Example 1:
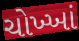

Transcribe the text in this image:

ચોખ્ખાં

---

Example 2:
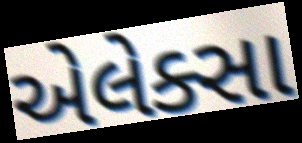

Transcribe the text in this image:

એલેક્સા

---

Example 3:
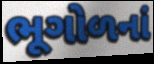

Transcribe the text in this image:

ભૂગોળનાં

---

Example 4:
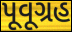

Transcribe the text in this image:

પૂવૂગ્રહ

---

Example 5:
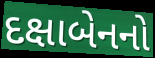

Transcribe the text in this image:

દક્ષાબેનનો